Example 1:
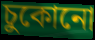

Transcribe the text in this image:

চুকোনো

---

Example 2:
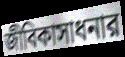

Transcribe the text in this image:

জীবিকাসাধনার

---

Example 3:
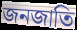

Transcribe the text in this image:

জনজাতি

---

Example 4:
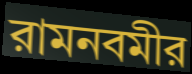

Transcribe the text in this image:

রামনবমীর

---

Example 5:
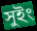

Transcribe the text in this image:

সুইং